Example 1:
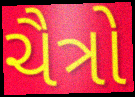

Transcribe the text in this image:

ચૈત્રો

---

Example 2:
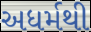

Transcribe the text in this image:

અધર્મથી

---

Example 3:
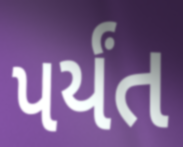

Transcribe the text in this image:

પર્યંત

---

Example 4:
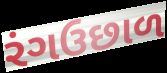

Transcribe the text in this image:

રંગઉછાળ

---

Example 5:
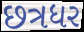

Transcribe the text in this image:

છત્રધર